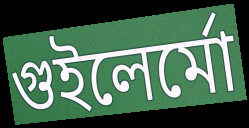
গুইলের্মো